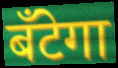
बँटेगा